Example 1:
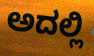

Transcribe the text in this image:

ಅದಲ್ಲಿ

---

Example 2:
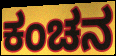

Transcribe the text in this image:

ಕಂಚನ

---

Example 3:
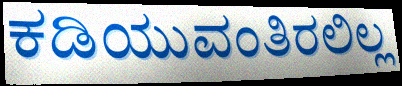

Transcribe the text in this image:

ಕಡಿಯುವಂತಿರಲಿಲ್ಲ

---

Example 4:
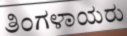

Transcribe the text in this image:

ತಿಂಗಳಾಯರು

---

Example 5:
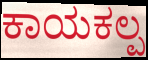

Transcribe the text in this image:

ಕಾಯಕಲ್ಪ